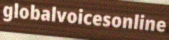
globalvoicesonline